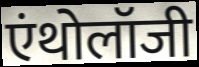
एंथोलॉजी